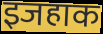
इजहाक